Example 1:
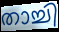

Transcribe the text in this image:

താച്ചി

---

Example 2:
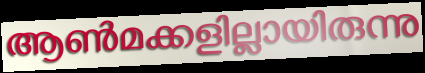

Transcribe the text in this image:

ആൺമക്കളില്ലായിരുന്നു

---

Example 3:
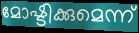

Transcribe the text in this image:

മോഷ്ടിക്കുമെന്ന്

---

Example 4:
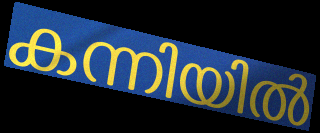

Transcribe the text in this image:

കന്നിയിൽ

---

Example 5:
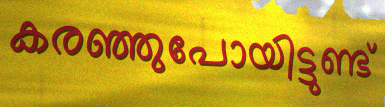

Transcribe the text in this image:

കരഞ്ഞുപോയിട്ടുണ്ട്